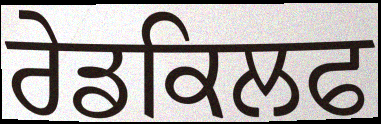
ਰੇਡਕਿਲਫ